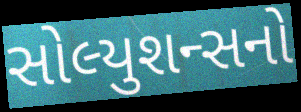
સોલ્યુશન્સનો